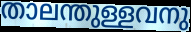
താലന്തുള്ളവനു